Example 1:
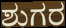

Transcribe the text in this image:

ಶುಗರ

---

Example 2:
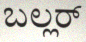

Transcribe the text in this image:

ಬಲ್ಲರ್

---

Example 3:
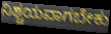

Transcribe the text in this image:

ನಿಶ್ಚಯವಾಗಬೇಕು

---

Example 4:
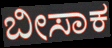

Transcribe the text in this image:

ಬೀಸಾಕ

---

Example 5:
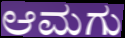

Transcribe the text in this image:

ಆಮಗು